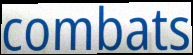
combats